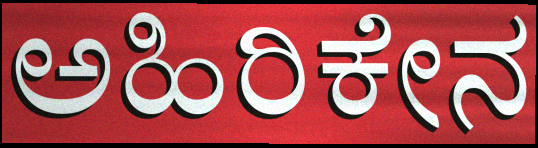
ಅಹಿರಿಕೇನ